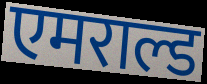
एमराल्‍ड